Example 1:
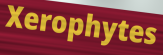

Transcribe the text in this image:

Xerophytes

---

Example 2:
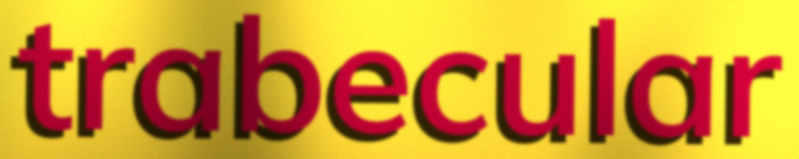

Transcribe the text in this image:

trabecular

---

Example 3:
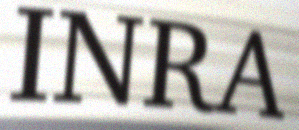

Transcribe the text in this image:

INRA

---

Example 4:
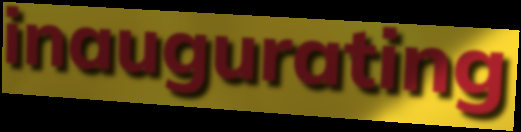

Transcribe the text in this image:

inaugurating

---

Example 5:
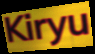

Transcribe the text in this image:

Kiryu